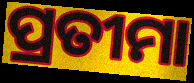
ପ୍ରତୀମା